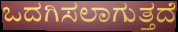
ಒದಗಿಸಲಾಗುತ್ತದೆ